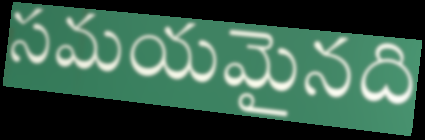
సమయమైనది